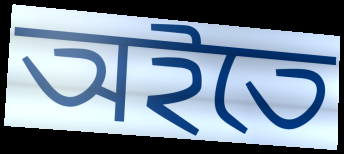
অইতে